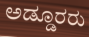
ಅಡ್ಡೂರರು